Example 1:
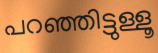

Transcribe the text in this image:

പറഞ്ഞിട്ടുള്ളൂ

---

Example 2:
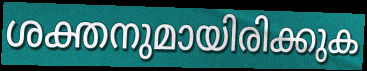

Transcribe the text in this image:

ശക്തനുമായിരിക്കുക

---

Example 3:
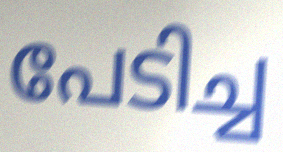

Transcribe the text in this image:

പേടിച്ച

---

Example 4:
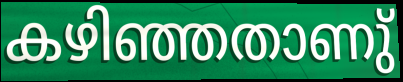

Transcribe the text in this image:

കഴിഞ്ഞതാണു്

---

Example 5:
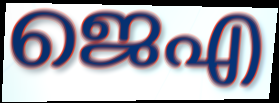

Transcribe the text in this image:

ജെഎ